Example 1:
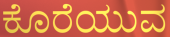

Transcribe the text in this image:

ಕೊರೆಯುವ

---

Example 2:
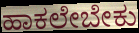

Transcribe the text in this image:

ಹಾಕಲೇಬೇಕು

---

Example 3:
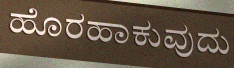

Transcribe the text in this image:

ಹೊರಹಾಕುವುದು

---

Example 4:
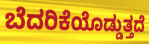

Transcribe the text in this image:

ಬೆದರಿಕೆಯೊಡ್ಡುತ್ತದೆ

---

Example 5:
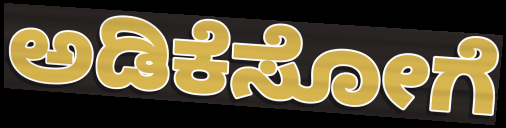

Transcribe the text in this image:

ಅಡಿಕೆಸೋಗೆ